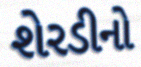
શેરડીનો